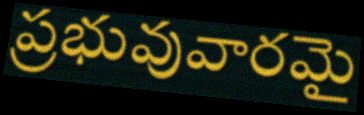
ప్రభువువారమై